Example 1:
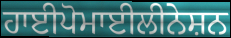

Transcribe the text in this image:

ਹਾਈਪੋਮਾਈਲੀਨੇਸ਼ਨ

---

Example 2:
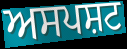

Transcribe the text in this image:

ਅਸਪਸ਼ਟ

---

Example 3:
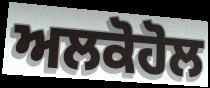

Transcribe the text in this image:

ਅਲਕੋਹੋਲ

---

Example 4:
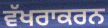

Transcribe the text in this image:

ਵੱਖਰਾਕਰਨ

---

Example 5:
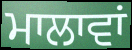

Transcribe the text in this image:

ਮਾਲਾਵਾਂ